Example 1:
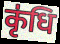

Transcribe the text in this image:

कृ॑धि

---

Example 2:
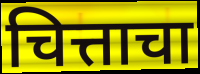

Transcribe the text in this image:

चित्ताचा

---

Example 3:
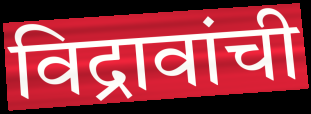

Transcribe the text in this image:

विद्रावांची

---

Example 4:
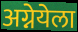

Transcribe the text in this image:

अग्नेयेला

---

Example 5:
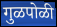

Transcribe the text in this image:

गुळपोळी